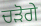
ਚੜੋਗੇ